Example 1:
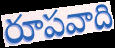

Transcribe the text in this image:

రూపవాది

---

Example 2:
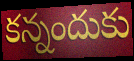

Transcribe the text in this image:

కన్నందుకు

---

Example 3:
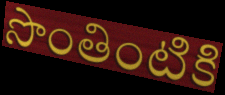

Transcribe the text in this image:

సొంతింటికి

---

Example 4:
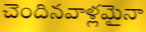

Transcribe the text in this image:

చెందినవాళ్లమైనా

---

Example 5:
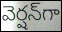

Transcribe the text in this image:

వెర్షన్‌గా